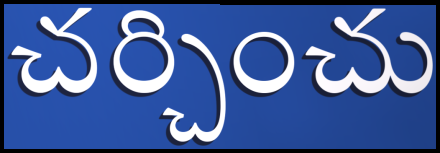
చర్చించు